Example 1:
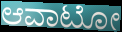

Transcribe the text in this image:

ಆವಾಟೋ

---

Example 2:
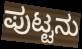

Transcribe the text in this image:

ಪುಟ್ಟನು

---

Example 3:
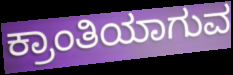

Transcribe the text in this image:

ಕ್ರಾಂತಿಯಾಗುವ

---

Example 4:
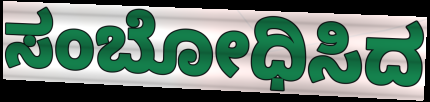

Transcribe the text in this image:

ಸಂಬೋಧಿಸಿದ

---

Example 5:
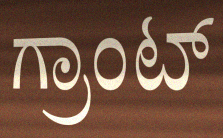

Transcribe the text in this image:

ಗ್ರಾಂಟ್